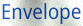
Envelope